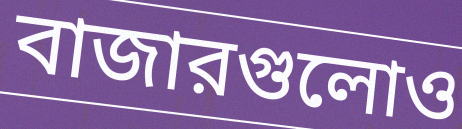
বাজারগুলোও